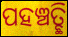
ପହଞ୍ଚତ୍ଛି